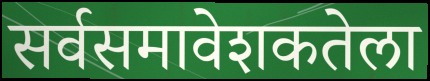
सर्वसमावेशकतेला